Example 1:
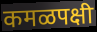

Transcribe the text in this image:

कमळपक्षी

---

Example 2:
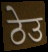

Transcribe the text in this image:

ठेउ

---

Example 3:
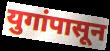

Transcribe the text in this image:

युगांपासून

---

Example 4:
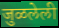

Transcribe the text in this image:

जुळलेली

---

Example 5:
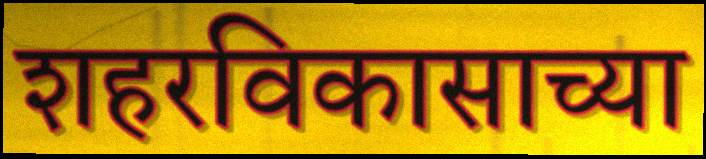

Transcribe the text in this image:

शहरविकासाच्या